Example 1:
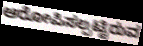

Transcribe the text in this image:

ಆರೋಪಿಸಲ್ಪಟ್ಟಿರುವ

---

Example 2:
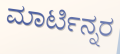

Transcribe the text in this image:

ಮಾರ್ಟಿನ್ನರ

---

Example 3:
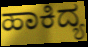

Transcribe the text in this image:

ಹಾಕಿದ್ಯ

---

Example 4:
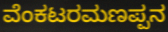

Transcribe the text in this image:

ವೆಂಕಟರಮಣಪ್ಪನ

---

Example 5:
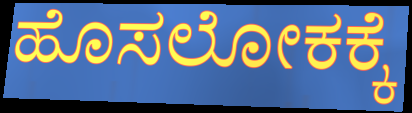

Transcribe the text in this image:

ಹೊಸಲೋಕಕ್ಕೆ